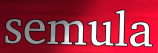
semula